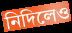
নিদিলেও